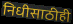
निधीसाठीही